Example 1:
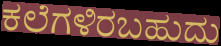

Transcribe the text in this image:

ಕಲೆಗಳಿರಬಹುದು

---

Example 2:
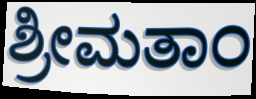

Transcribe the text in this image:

ಶ್ರೀಮತಾಂ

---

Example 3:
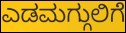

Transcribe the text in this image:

ಎಡಮಗ್ಗುಲಿಗೆ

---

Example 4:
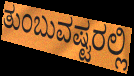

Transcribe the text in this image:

ತುಂಬುವಷ್ಟರಲ್ಲಿ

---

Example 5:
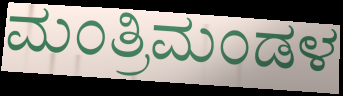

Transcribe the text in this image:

ಮಂತ್ರಿಮಂಡಳ